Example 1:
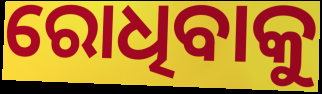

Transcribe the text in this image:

ରୋଧିବାକୁ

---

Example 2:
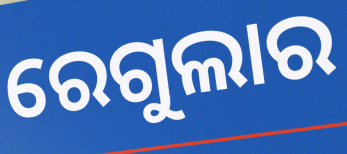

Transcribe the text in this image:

ରେଗୁଲାର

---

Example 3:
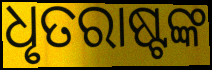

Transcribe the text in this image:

ଧୃତରାଷ୍ଟଙ୍କ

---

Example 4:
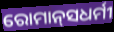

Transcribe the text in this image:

ରୋମାନ୍‌ସଧର୍ମୀ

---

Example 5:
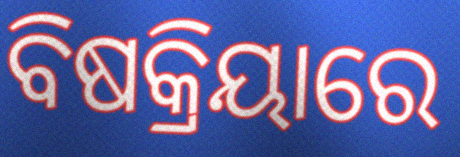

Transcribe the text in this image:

ବିଷକ୍ରିୟାରେ